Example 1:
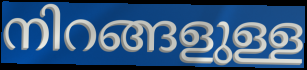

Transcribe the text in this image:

നിറങ്ങളുള്ള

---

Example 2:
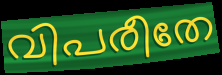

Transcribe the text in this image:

വിപരീതേ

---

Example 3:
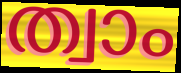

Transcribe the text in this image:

ത്വാം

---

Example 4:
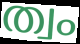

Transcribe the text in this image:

ത്വം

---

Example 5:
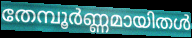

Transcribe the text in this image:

തേമ്പൂർണ്ണമായിതൾ